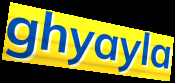
ghyayla